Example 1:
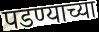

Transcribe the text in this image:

पडण्याच्या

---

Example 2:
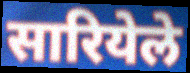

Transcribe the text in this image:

सारियेले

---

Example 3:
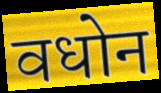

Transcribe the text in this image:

वधोन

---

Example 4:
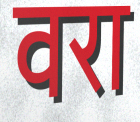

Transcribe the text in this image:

वरा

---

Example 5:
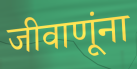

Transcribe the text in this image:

जीवाणूंना